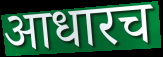
आधारच